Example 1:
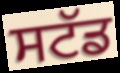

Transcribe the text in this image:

ਸਟੱਡ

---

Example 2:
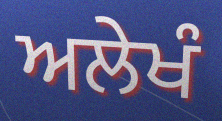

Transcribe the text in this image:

ਅਲੇਖੰ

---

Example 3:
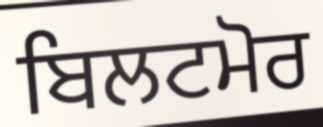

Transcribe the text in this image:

ਬਿਲਟਮੋਰ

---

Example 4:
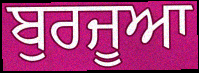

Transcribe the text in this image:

ਬੁਰਜੂਆ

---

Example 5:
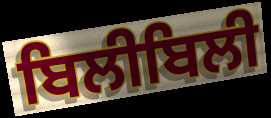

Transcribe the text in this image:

ਬਿਲੀਬਿਲੀ